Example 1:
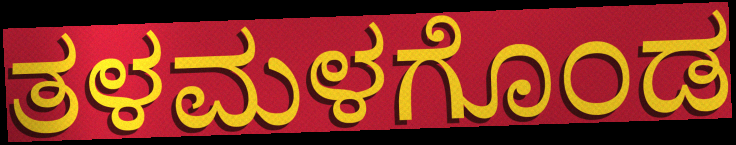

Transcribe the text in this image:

ತಳಮಳಗೊಂಡ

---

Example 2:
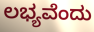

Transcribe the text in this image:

ಲಭ್ಯವೆಂದು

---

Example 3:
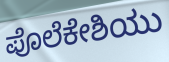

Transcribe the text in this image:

ಪೊಲೆಕೇಶಿಯು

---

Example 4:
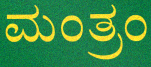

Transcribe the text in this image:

ಮಂತ್ರಂ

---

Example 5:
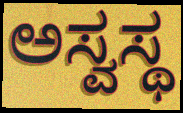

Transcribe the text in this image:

ಅಸ್ವಸ್ಥ